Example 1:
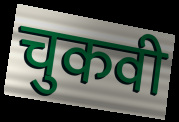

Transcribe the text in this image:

चुकवी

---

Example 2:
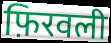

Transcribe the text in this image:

फ़िरवली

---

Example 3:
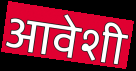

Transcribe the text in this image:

आवेशी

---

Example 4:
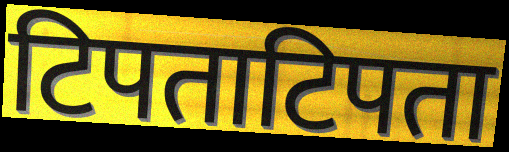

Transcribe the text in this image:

टिपताटिपता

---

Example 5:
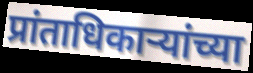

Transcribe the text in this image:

प्रांताधिकाऱ्यांच्या